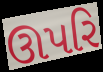
ઊપરિ